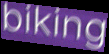
biking